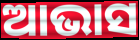
ଆଭାସ